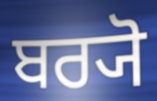
ਬਰ੍ਯੋ